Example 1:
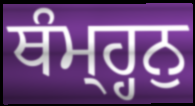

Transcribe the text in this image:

ਥੰਮ੍ਹ੍ਹਨੁ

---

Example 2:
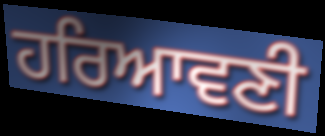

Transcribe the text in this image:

ਹਰਿਆਵਣੀ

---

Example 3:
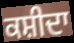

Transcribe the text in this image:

ਕਸ਼ੀਦਾ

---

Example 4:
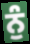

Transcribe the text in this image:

ਨੁੰ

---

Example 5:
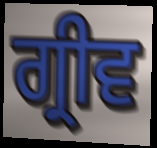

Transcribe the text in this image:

ਗ੍ਰੀਵ